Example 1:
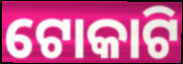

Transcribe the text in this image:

ଟୋକାଟି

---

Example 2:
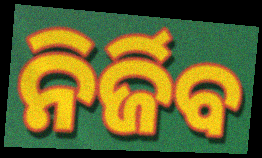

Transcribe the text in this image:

ନିର୍ଜିବ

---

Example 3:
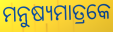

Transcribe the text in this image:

ମନୁଷ୍ୟମାତ୍ରକେ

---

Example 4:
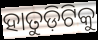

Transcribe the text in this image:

ହାତୁଡ଼ିଟିକୁ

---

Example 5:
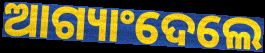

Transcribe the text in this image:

ଆଗ୍ୟାଂଦେଲେ